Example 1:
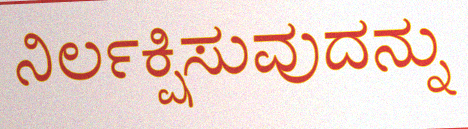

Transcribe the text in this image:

ನಿರ್ಲಕ್ಷಿಸುವುದನ್ನು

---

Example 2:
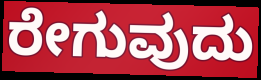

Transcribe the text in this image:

ರೇಗುವುದು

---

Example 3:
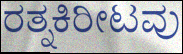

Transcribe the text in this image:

ರತ್ನಕಿರೀಟವು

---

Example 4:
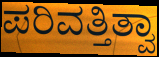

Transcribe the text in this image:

ಪರಿವತ್ತಿತ್ವಾ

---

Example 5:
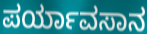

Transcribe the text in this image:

ಪರ್ಯಾವಸಾನ